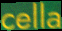
cella